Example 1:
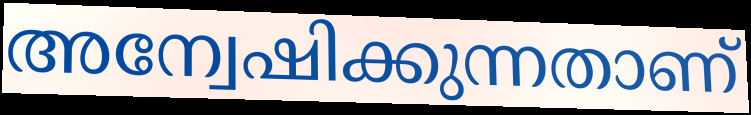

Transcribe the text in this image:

അന്വേഷിക്കുന്നതാണ്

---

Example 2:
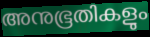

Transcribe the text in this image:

അനുഭൂതികളും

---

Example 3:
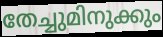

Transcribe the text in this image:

തേച്ചുമിനുക്കും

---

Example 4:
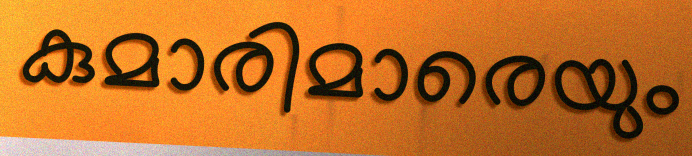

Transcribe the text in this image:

കുമാരിമാരെയും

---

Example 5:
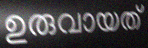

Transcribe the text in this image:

ഉരുവായത്